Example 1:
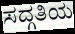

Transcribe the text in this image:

ಸದ್ಗತಿಯ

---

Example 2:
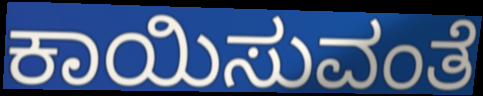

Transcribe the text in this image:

ಕಾಯಿಸುವಂತೆ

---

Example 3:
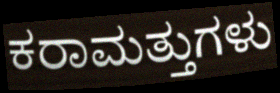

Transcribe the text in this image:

ಕರಾಮತ್ತುಗಳು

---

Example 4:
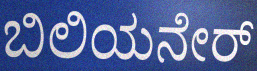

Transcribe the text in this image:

ಬಿಲಿಯನೇರ್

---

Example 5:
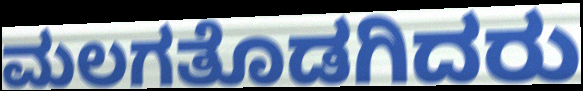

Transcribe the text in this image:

ಮಲಗತೊಡಗಿದರು